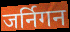
जर्निगन